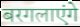
बरगलाएंगे